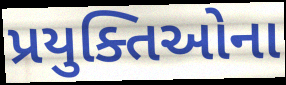
પ્રયુક્તિઓના